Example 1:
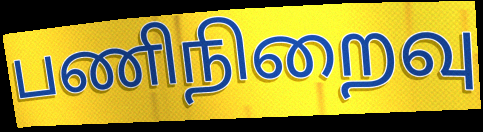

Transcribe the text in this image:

பணிநிறைவு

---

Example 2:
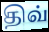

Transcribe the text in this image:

திவ்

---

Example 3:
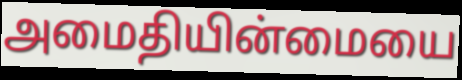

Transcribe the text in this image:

அமைதியின்மையை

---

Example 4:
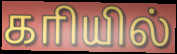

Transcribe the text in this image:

கரியில்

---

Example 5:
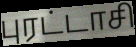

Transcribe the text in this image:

புரட்டாசி